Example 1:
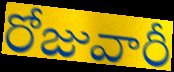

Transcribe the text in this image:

రోజువారీ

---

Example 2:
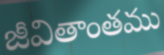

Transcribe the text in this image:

జీవితాంతము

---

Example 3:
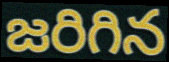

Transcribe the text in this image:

జరిగిన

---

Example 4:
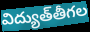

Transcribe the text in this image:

విద్యుత్‌తీగల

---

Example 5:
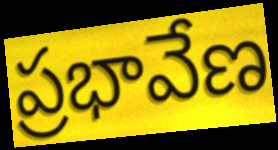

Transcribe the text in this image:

ప్రభావేణ